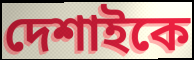
দেশাইকে